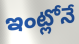
ఇంట్లోనే